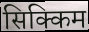
सिक्किम